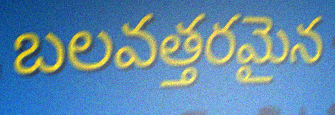
బలవత్తరమైన